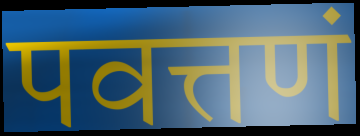
पवत्तणं